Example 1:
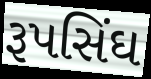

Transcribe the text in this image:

રૂપસિંઘ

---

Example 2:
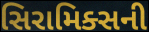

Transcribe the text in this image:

સિરામિક્સની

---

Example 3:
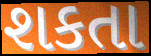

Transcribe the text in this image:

શકતા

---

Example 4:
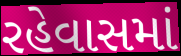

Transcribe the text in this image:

રહેવાસમાં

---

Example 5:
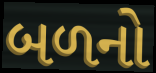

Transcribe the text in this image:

બળનો